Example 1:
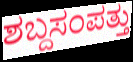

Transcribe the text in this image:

ಶಬ್ದಸಂಪತ್ತು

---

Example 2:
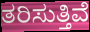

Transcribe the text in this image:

ತರಿಸುತ್ತಿವೆ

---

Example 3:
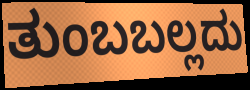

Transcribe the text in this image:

ತುಂಬಬಲ್ಲದು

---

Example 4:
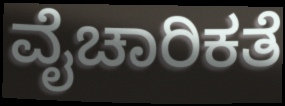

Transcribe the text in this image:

ವೈಚಾರಿಕತೆ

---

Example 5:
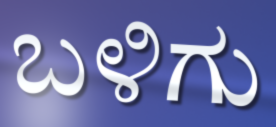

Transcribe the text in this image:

ಬಳಿಗು